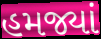
હમજ્યાં